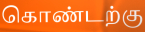
கொண்டற்கு